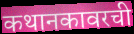
कथानकावरची